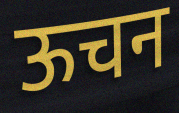
ऊचन